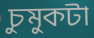
চুমুকটা